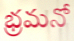
భ్రమనో